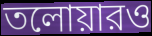
তলোয়ারও